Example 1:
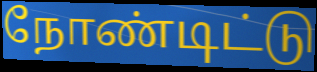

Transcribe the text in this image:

நோண்டிட்டு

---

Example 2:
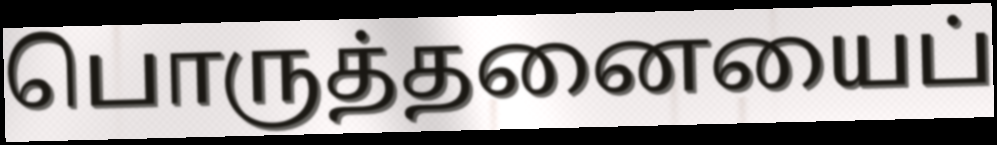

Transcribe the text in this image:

பொருத்தனையைப்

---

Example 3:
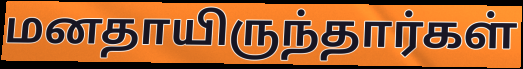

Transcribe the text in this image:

மனதாயிருந்தார்கள்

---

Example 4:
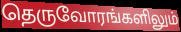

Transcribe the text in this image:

தெருவோரங்களிலும்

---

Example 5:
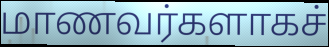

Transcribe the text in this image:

மாணவர்களாகச்